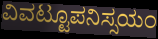
ವಿವಟ್ಟೂಪನಿಸ್ಸಯಂ